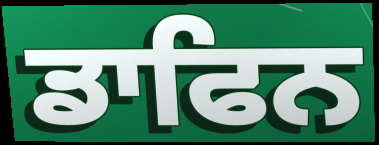
ਡਾਫਿਨ